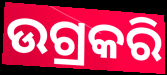
ଉଗ୍ରକରି